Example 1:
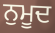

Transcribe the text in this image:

ਨੁਮੂਦ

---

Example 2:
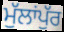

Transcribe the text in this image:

ਮੁੱਲਾਂਪੁੱਰ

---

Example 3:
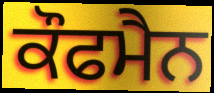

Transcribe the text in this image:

ਕੌਫਮੈਨ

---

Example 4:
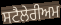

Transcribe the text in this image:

ਸਟੈਲੇਰੀਅਮ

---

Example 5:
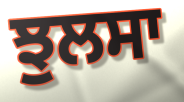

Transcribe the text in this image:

ਝੁਲਸਾ